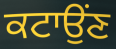
ਕਟਾਉਂਣ